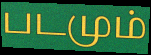
படமும்